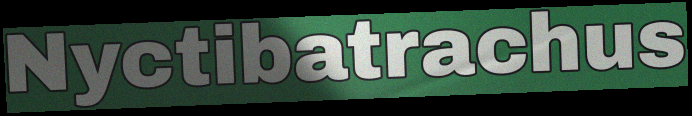
Nyctibatrachus